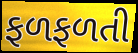
ફળફળતી